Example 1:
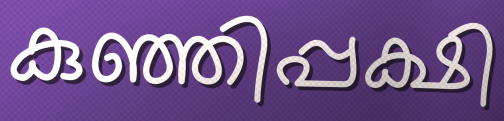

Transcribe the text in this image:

കുഞ്ഞിപ്പക്ഷി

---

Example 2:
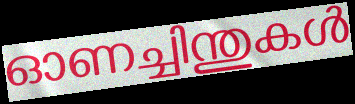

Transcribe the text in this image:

ഓണച്ചിന്തുകൾ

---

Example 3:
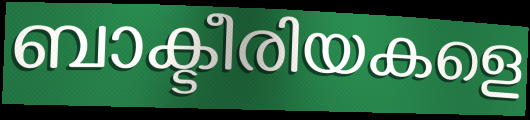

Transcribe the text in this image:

ബാക്ടീരിയകളെ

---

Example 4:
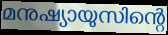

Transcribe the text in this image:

മനുഷ്യായുസിന്റെ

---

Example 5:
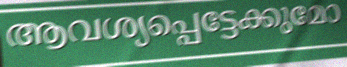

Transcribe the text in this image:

ആവശ്യപ്പെട്ടേക്കുമോ